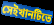
সেইখানটিতে